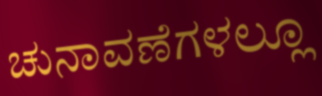
ಚುನಾವಣೆಗಳಲ್ಲೂ